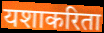
यशाकरिता